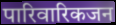
पारिवारिकजन